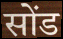
सोंड